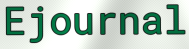
Ejournal